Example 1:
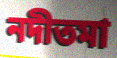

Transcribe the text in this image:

নদীতমা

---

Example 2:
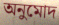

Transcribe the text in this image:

অনুমোদ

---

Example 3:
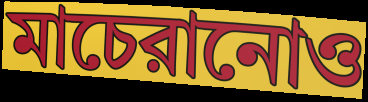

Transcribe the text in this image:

মাচেরানোও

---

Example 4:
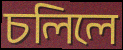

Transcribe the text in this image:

চলিলে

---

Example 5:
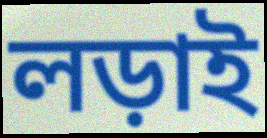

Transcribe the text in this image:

লড়াই